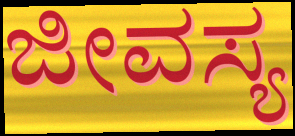
ಜೀವಸ್ಯ